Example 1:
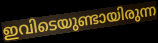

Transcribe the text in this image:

ഇവിടെയുണ്ടായിരുന്ന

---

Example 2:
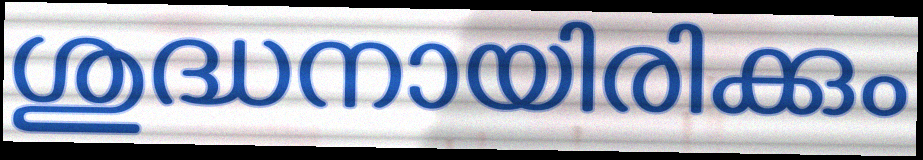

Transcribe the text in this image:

ശുദ്ധനായിരിക്കും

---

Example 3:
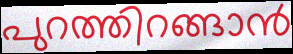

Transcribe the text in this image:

പുറത്തിറങ്ങാൻ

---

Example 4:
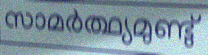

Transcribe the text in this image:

സാമർത്ഥ്യമുണ്ടു്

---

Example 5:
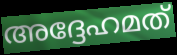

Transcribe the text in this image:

അദ്ദേഹമത്